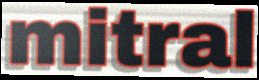
mitral